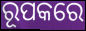
ରୂପକରେ